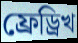
ফ্ৰেড্ৰিখ